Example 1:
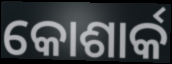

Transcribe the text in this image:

କୋଶାର୍କ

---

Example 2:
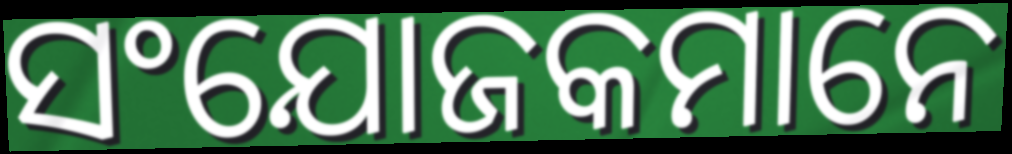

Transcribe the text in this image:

ସଂଯୋଜକମାନେ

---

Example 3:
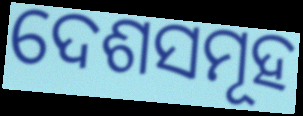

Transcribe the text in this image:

ଦେଶସମୂହ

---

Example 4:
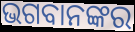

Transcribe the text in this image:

ଭଗବାନଙ୍କର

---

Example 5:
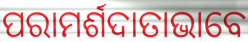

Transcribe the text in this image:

ପରାମର୍ଶଦାତାଭାବେ